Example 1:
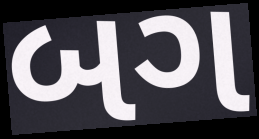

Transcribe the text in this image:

બગ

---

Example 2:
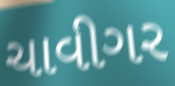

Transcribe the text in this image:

ચાવીગર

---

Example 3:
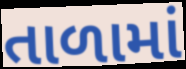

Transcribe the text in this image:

તાળામાં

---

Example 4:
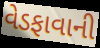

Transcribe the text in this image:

વેડફાવાની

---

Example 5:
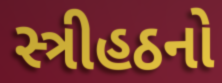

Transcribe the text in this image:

સ્ત્રીહઠનો